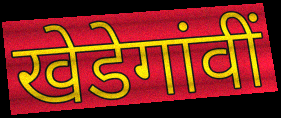
खेडेगांवीं